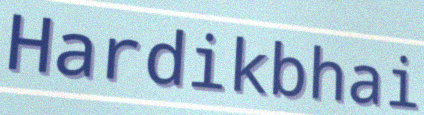
Hardikbhai